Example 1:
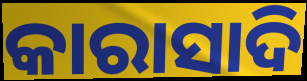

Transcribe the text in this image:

କାରାସାଦି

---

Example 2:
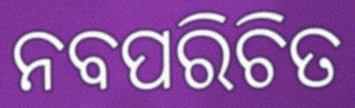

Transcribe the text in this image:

ନବପରିଚିତ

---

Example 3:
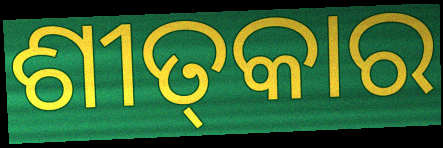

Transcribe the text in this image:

ଶୀତ୍‌କାର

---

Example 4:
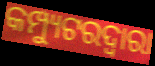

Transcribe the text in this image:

କମ୍ପ୍ୟୁଟରଦ୍ୱାରା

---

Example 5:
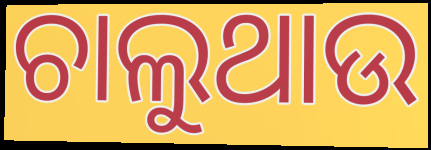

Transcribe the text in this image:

ଚାଲୁଥାଉ